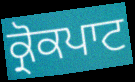
ਕ੍ਰੋਕਪਾਟ